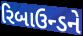
રિબાઉન્ડને